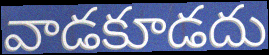
వాడకూడదు